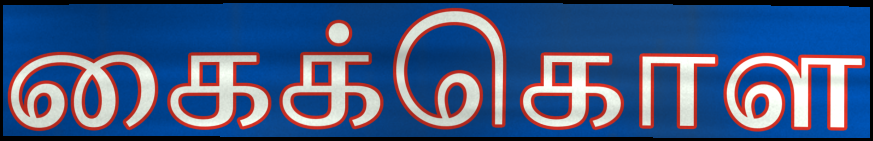
கைக்கொள